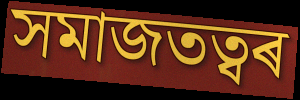
সমাজতত্বৰ